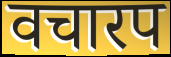
वचारप